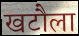
खटौला